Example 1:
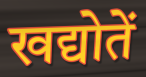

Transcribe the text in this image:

खद्योतें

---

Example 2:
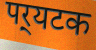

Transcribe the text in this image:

पर्यटक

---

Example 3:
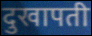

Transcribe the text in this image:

दुखापती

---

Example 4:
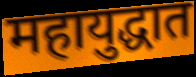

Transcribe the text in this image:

महायुद्धात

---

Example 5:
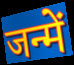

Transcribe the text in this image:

जन्में